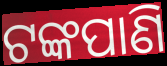
ଟଙ୍କପାଣି